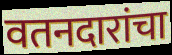
वतनदारांचा